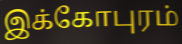
இக்கோபுரம்